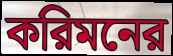
করিমনের